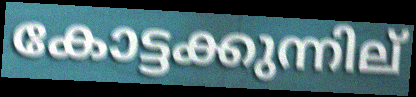
കോട്ടക്കുന്നില്